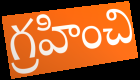
గ్రహించి